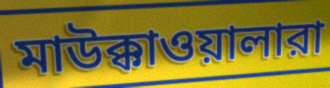
মাউক্কাওয়ালারা